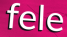
fele